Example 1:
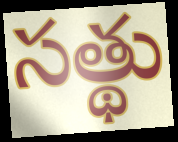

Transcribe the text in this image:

సత్థు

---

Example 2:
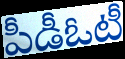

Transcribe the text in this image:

పీడీఓటీ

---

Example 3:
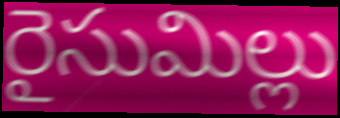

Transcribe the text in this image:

రైసుమిల్లు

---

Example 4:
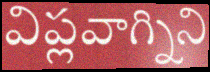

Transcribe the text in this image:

విప్లవాగ్నిని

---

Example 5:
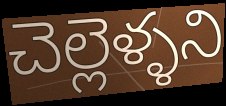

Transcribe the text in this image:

చెల్లెళ్ళని